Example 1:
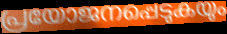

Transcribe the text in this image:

പ്രയോജനപ്പെടുകയും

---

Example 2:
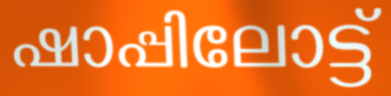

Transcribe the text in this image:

ഷാപ്പിലോട്ട്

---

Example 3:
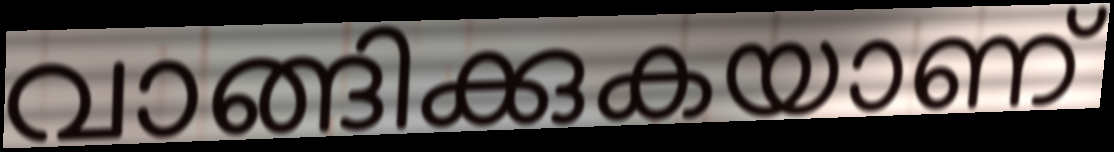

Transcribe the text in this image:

വാങ്ങിക്കുകയാണ്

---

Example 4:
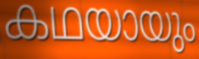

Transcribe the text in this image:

കഥയായും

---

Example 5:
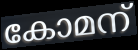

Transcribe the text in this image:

കോമന്